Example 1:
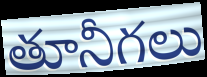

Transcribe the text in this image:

తూనీగలు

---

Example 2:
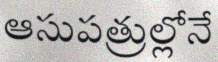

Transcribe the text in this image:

ఆసుపత్రుల్లోనే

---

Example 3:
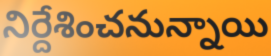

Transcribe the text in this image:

నిర్దేశించనున్నాయి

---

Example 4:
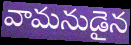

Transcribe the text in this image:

వామనుడైన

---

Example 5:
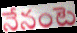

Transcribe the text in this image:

నేనంటె